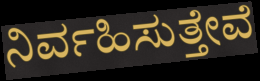
ನಿರ್ವಹಿಸುತ್ತೇವೆ